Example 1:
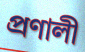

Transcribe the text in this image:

প্ৰণালী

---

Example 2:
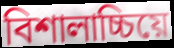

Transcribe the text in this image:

বিশালাচ্চিয়ে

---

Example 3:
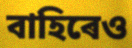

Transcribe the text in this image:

বাহিৰেও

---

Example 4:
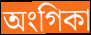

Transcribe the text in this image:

অংগিকা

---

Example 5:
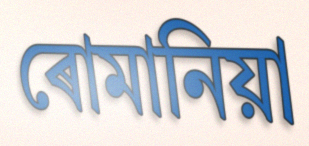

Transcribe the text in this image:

ৰোমানিয়া